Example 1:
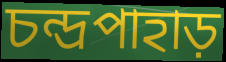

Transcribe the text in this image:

চন্দ্রপাহাড়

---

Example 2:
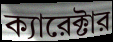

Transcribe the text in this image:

ক্যারেক্টার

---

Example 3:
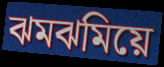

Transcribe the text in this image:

ঝমঝমিয়ে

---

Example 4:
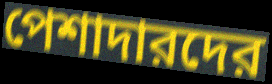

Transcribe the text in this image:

পেশাদারদের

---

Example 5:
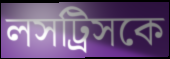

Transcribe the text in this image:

লসট্রিসকে